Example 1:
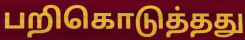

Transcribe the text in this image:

பறிகொடுத்தது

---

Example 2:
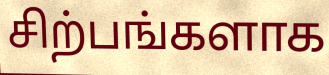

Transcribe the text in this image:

சிற்பங்களாக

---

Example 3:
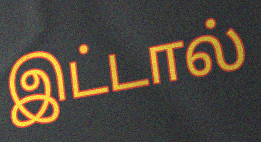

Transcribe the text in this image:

இட்டால்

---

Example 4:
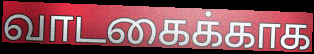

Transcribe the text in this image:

வாடகைக்காக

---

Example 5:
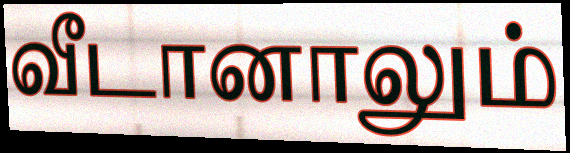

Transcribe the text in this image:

வீடானாலும்